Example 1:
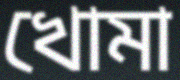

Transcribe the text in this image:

খোমা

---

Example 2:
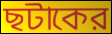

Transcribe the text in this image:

ছটাকের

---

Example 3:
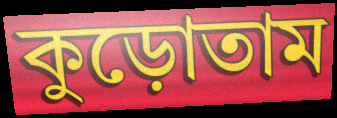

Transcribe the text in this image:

কুড়োতাম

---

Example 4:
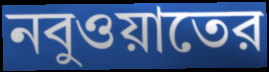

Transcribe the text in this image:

নবুওয়াতের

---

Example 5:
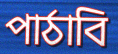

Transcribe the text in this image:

পাঠাবি